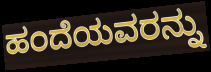
ಹಂದೆಯವರನ್ನು